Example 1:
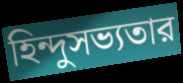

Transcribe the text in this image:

হিন্দুসভ্যতার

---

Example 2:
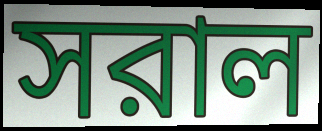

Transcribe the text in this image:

সরাল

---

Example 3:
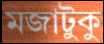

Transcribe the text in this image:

মজাটুকু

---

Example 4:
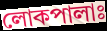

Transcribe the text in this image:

লোকপালাঃ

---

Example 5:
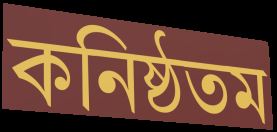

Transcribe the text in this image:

কনিষ্ঠতম